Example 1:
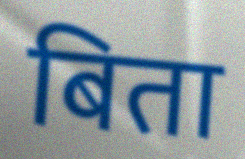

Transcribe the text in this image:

बिता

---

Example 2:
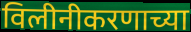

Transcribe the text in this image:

विलीनीकरणाच्या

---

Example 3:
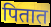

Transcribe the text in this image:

पितात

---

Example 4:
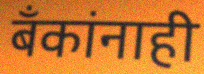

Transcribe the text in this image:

बँकांनाही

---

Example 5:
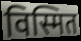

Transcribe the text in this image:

विस्मित